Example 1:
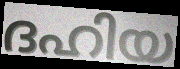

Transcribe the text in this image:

ദഹിയ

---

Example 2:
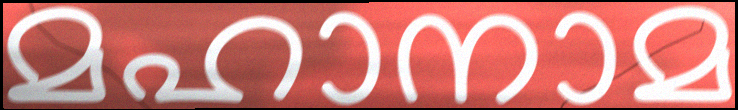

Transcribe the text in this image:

മഹാനാമ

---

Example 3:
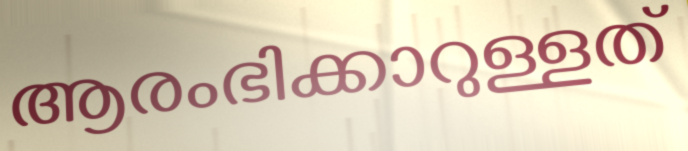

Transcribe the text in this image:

ആരംഭിക്കാറുള്ളത്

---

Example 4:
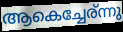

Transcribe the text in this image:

ആകെച്ചേര്ന്നു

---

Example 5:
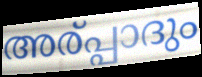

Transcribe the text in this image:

അര്പ്പാദും